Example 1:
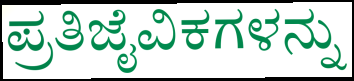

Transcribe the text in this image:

ಪ್ರತಿಜೈವಿಕಗಳನ್ನು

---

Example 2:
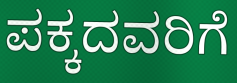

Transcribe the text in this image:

ಪಕ್ಕದವರಿಗೆ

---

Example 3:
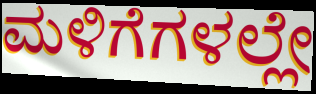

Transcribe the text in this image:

ಮಳಿಗೆಗಳಲ್ಲೇ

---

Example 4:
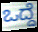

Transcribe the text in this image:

ಒದ್ದೆ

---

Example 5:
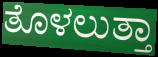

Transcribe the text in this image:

ತೊಳಲುತ್ತಾ